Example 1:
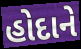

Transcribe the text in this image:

હોદાને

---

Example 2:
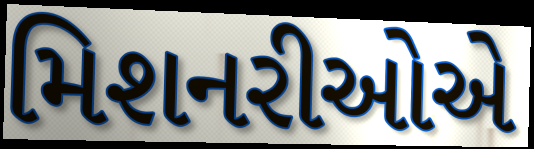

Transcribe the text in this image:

મિશનરીઓએ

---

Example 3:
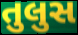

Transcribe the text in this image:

તુલુસ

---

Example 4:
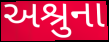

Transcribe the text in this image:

અશ્રુના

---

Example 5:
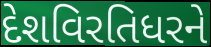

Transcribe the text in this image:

દેશવિરતિધરને